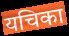
यचिका